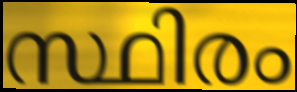
സ്ഥിരം